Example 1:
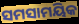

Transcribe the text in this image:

ସମସାମୟିକ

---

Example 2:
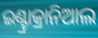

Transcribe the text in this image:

ଇଣ୍ଟ୍ରାକ୍ରାନିଆଲ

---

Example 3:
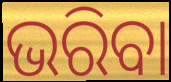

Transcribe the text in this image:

ଭରିବା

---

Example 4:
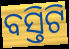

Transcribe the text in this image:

ବସ୍ତିଟି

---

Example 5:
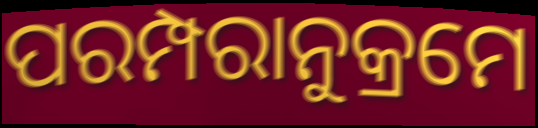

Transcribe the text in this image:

ପରମ୍ପରାନୁକ୍ରମେ